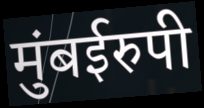
मुंबईरुपी